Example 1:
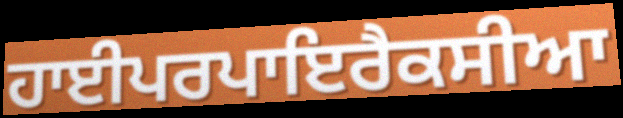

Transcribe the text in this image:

ਹਾਈਪਰਪਾਇਰੈਕਸੀਆ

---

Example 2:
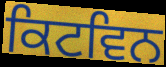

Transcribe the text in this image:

ਕਿਟਵਿਨ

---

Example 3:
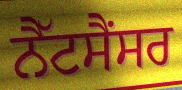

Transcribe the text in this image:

ਨੈੱਟਸੈਂਸਰ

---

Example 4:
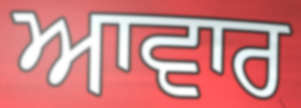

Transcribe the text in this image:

ਆਵਾਰ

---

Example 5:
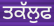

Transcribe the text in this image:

ਤਕੱਲੁਫ